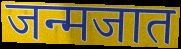
जन्मजात